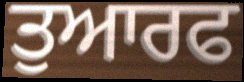
ਤੁਆਰਫ